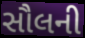
સૌલની